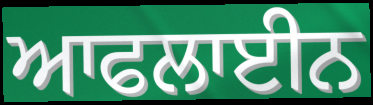
ਆਫਲਾਈਨ